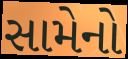
સામેનો